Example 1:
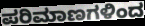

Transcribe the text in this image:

ಪರಿಮಾಣಗಳಿಂದ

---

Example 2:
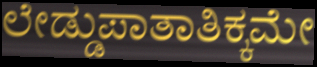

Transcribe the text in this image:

ಲೇಡ್ಡುಪಾತಾತಿಕ್ಕಮೇ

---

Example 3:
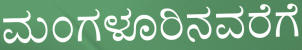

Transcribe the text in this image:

ಮಂಗಳೂರಿನವರೆಗೆ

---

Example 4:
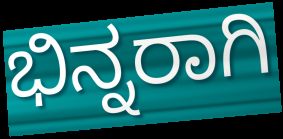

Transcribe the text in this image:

ಭಿನ್ನರಾಗಿ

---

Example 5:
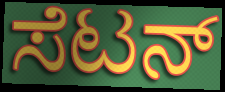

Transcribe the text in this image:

ಸೆಟನ್